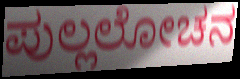
ಪುಲ್ಲಲೋಚನ